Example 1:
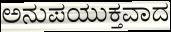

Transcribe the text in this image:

ಅನುಪಯುಕ್ತವಾದ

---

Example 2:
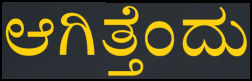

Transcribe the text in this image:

ಆಗಿತ್ತೆಂದು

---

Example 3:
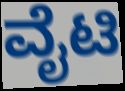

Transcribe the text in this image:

ವೈಟಿ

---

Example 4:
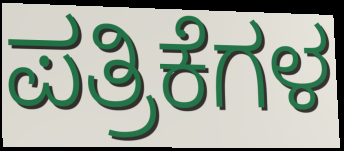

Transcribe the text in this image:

ಪತ್ರಿಕೆಗಳ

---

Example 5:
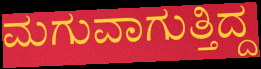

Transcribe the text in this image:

ಮಗುವಾಗುತ್ತಿದ್ದ